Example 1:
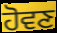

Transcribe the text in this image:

ਹੋਵਣ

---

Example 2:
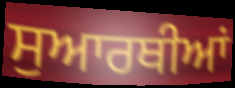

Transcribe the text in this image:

ਸੁਆਰਥੀਆਂ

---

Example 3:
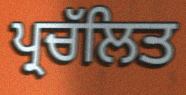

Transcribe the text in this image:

ਪ੍ਰਚੱਲਿਤ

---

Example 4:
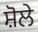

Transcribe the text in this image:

ਸ਼ੋਲੇ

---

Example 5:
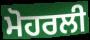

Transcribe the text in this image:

ਮੋਹਰਲੀ